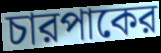
চারপাকের